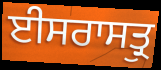
ਈਸਰਾਸਤ੍ਰੁ